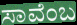
ಸಾವೆಂಬ